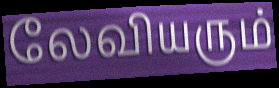
லேவியரும்